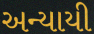
અન્યાયી